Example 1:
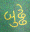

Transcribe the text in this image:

બુઢ્ઢે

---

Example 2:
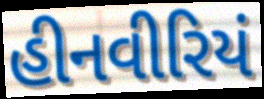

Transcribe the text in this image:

હીનવીરિયં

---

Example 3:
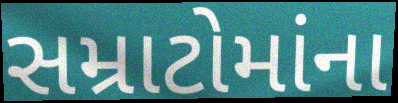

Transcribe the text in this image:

સમ્રાટોમાંના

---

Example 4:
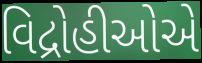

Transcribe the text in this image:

વિદ્રોહીઓએ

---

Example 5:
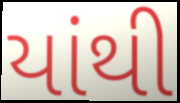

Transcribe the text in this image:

યાંથી